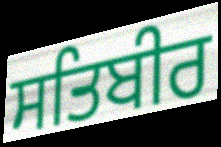
ਸਤਿਬੀਰ